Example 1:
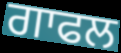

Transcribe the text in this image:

ਗਾਫਲ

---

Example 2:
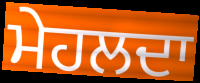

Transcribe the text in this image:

ਮੇਹਲਦਾ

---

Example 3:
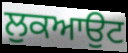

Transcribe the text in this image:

ਲੁਕਆਉਟ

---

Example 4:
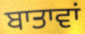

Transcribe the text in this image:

ਬਾਤਾਵਾਂ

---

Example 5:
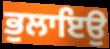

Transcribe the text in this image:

ਭੁਲਾਇਉ